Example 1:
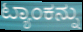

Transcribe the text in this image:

ಟ್ಯಾಂಕನ್ನು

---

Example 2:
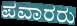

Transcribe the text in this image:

ಪವಾರರು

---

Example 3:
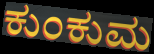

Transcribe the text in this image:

ಕುಂಕುಮ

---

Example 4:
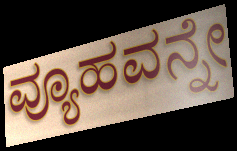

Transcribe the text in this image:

ವ್ಯೂಹವನ್ನೇ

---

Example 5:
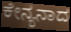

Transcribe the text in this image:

ಕೇನ್ಯನಾದ